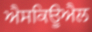
ਐਸਕਿਊਐਲ